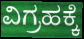
ವಿಗ್ರಹಕ್ಕೆ